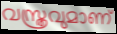
വസ്ത്രവുമാണ്